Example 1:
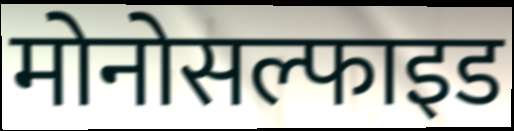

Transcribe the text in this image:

मोनोसल्फाइड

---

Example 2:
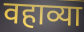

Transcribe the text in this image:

वहाव्या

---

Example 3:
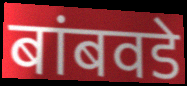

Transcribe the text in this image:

बांबवडे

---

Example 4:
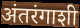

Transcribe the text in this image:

अंतरंगाशी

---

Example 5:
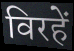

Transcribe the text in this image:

विरहें